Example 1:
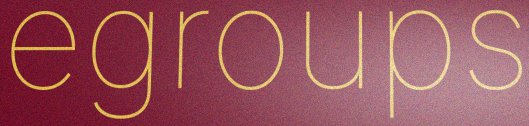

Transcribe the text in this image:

egroups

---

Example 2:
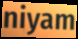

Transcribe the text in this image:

niyam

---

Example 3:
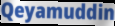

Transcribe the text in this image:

Qeyamuddin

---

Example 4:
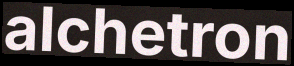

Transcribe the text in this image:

alchetron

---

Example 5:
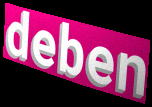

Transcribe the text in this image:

deben